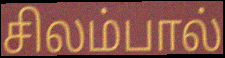
சிலம்பால்